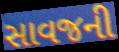
સાવજની